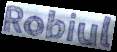
Robiul